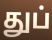
துப்